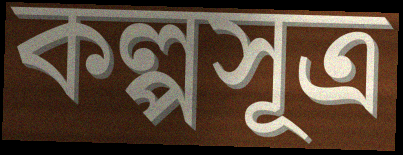
কল্পসূত্র